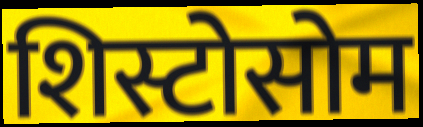
शिस्टोसोम